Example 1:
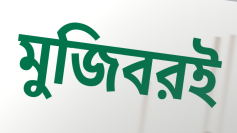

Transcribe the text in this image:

মুজিবরই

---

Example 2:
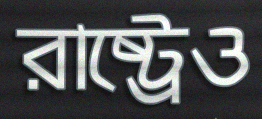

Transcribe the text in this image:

রাষ্ট্রেও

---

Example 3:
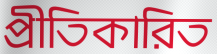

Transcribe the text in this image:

প্রীতিকারিত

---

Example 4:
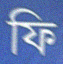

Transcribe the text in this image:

ফি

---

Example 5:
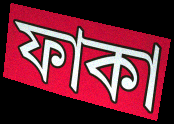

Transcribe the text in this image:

ফাকা